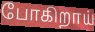
போகிறாய்